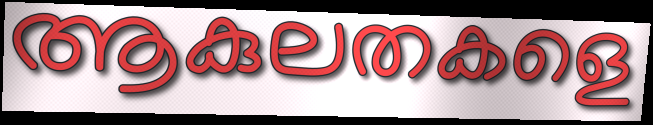
ആകുലതകളെ